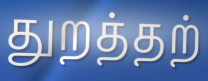
துறத்தற்